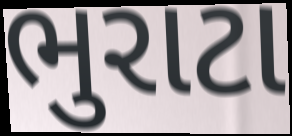
ભુરાટા